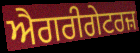
ਐਗਰੀਗੇਟਰਜ਼